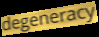
degeneracy